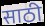
साठी